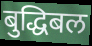
बुद्धिबल